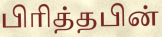
பிரித்தபின்